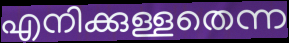
എനിക്കുള്ളതെന്ന